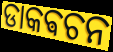
ଡାକଵଚନ